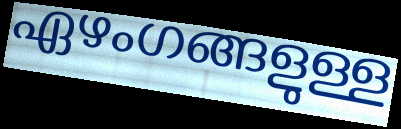
ഏഴംഗങ്ങളുള്ള